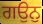
ਗਉਨੁ